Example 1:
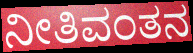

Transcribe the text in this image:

ನೀತಿವಂತನ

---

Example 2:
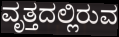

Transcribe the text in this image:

ವೃತ್ತದಲ್ಲಿರುವ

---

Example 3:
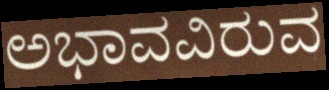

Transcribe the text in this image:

ಅಭಾವವಿರುವ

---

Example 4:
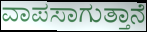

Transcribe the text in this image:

ವಾಪಸಾಗುತ್ತಾನೆ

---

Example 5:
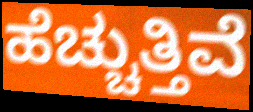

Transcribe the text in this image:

ಹೆಚ್ಚುತ್ತಿವೆ